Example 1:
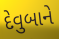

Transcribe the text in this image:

દેવુબાને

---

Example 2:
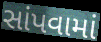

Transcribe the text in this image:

સાંપવામાં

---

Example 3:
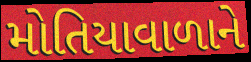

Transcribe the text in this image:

મોતિયાવાળાને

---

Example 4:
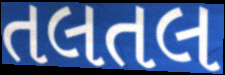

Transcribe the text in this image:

તલતલ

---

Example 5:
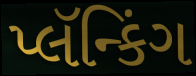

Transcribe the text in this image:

પ્લૅન્કિંગ